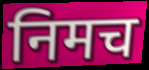
निमच